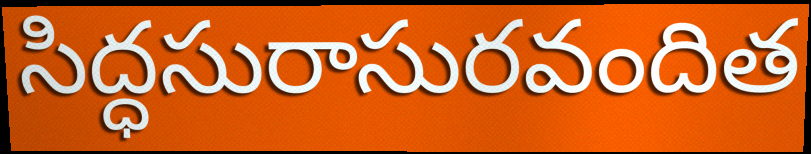
సిద్ధసురాసురవందిత